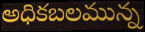
అధికబలమున్న